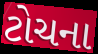
ટોચના